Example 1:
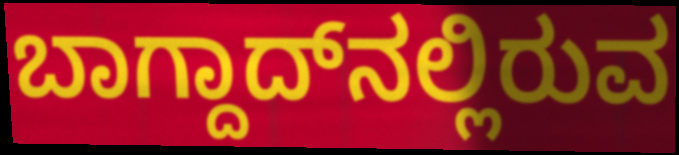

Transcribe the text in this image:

ಬಾಗ್ದಾದ್‌ನಲ್ಲಿರುವ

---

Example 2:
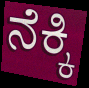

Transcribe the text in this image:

ನೆಕ್ಕಿ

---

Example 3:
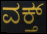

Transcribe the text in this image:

ವಕ್ತ್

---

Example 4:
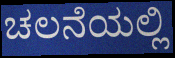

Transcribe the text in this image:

ಚಲನೆಯಲ್ಲಿ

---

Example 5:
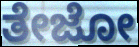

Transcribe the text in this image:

ತೇಜೋ